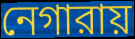
নেগারায়